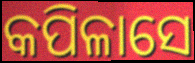
କପିଳାସେ